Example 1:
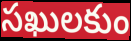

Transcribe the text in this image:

సఖులకుం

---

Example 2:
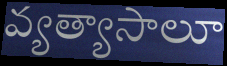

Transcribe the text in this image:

వ్యత్యాసాలూ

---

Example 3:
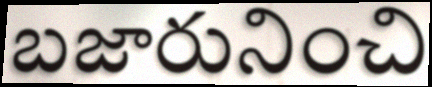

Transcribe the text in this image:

బజారునించి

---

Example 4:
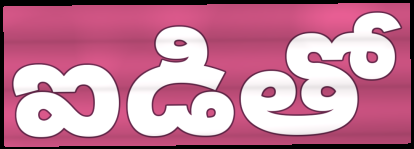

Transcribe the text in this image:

ఐడితో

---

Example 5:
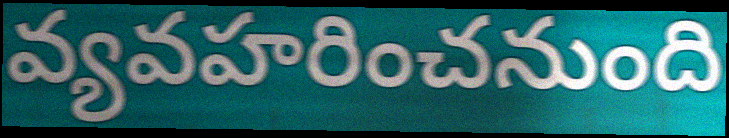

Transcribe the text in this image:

వ్యవహరించనుంది